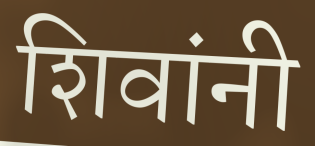
शिवांनी